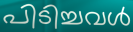
പിടിച്ചവൾ